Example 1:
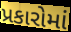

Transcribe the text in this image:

પ્રકારોમાં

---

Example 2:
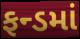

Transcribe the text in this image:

ફન્ડમાં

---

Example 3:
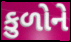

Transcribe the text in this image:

કુળોને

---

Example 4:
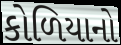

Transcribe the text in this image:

કોળિયાનો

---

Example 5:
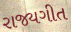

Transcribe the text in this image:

રાજ્યગીત